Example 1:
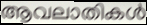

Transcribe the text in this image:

ആവലാതികൾ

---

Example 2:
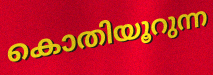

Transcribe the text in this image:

കൊതിയൂറുന്ന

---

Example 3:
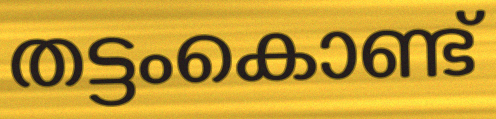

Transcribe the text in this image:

തട്ടംകൊണ്ട്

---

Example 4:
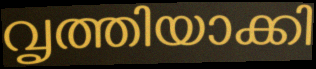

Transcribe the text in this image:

വൃത്തിയാക്കി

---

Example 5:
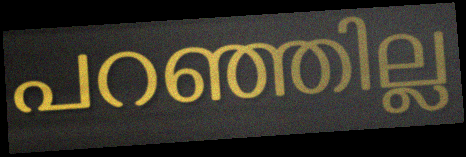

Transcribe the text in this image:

പറഞ്ഞില്ല